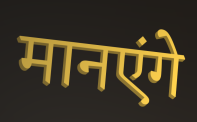
मानएंगे